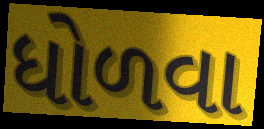
ધોળવા